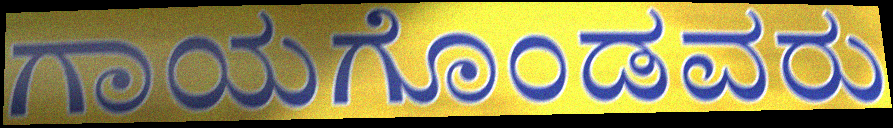
ಗಾಯಗೊಂಡವರು